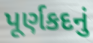
પૂર્ણકદનું